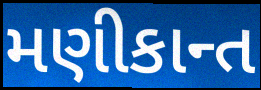
મણીકાન્ત